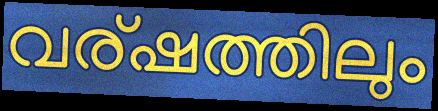
വര്ഷത്തിലും